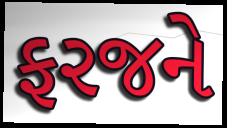
ફરજને